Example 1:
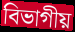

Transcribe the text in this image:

বিভাগীয়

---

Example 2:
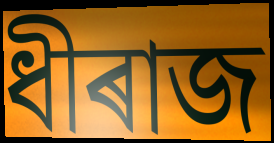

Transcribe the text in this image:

ধীৰাজ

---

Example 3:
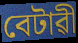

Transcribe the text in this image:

বেটাৱী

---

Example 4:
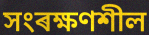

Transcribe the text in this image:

সংৰক্ষণশীল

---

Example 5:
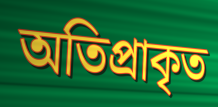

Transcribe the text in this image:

অতিপ্ৰাকৃত